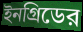
ইনগ্রিডের